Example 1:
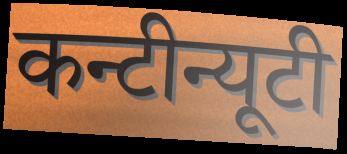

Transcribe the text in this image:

कन्टीन्यूटी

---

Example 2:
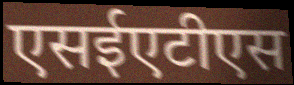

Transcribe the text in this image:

एसईएटीएस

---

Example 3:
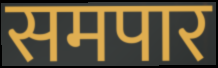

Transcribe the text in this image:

समपार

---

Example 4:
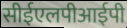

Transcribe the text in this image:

सीईएलपीआईपी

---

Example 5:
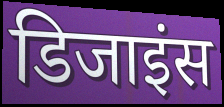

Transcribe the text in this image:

डिजाइंस